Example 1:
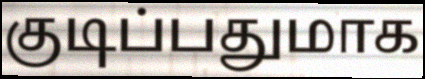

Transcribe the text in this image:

குடிப்பதுமாக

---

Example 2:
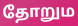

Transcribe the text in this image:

தோறும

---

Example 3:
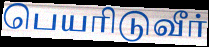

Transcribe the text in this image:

பெயரிடுவீர்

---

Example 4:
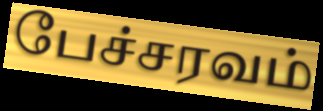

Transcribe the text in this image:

பேச்சரவம்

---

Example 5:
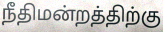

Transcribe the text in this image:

நீதிமன்றத்திற்கு